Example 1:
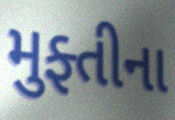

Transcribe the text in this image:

મુફ્તીના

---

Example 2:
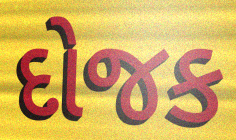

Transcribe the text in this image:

દોજક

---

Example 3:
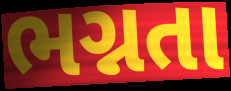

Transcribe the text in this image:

ભગ્નતા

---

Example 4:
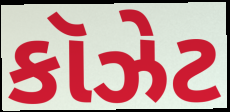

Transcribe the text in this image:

કૉઝેટ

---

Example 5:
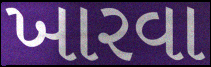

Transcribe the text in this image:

ખારવા